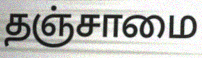
தஞ்சாமை